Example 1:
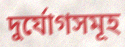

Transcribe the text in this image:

দুর্যোগসমূহ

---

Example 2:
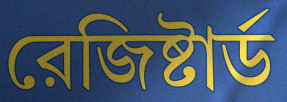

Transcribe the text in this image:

রেজিষ্টার্ড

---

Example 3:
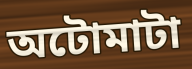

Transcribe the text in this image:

অটোমাটা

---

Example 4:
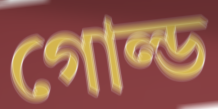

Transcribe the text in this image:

গোল্ড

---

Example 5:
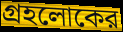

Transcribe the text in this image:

গ্রহলোকের